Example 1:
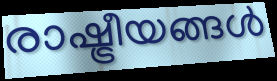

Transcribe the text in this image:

രാഷ്ട്രീയങ്ങൾ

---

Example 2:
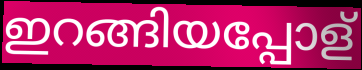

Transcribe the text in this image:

ഇറങ്ങിയപ്പോള്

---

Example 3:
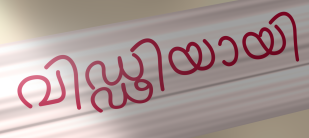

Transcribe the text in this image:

വിഡ്ഢിയായി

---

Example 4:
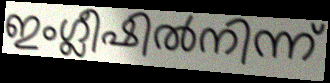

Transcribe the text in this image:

ഇംഗ്ലീഷിൽനിന്ന്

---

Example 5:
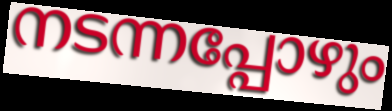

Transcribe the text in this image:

നടന്നപ്പോഴും